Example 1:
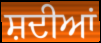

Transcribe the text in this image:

ਸ਼ਦੀਆਂ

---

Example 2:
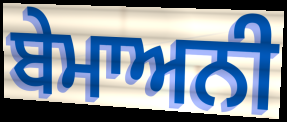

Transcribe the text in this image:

ਬੇਮਾਅਨੀ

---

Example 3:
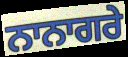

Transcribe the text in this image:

ਨਾਨਾਗਰੇ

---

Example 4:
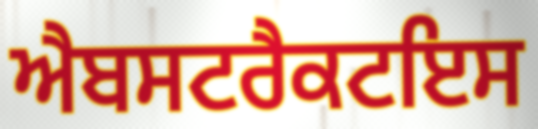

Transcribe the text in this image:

ਐਬਸਟਰੈਕਟਇਸ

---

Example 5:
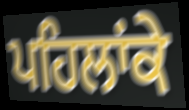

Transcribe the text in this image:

ਪਹਿਲਾਂਕੇ